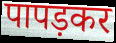
पापड़कर